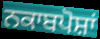
ਨਕਾਬਪੋਸ਼ਾਂ